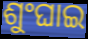
ଶୁଂଘାଇ